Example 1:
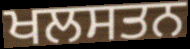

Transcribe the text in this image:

ਖਲਸਤਨ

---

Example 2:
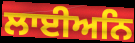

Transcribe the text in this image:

ਲਾਈਅਨਿ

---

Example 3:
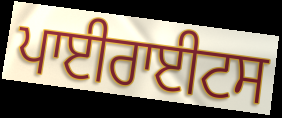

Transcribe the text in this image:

ਪਾਈਰਾਈਟਸ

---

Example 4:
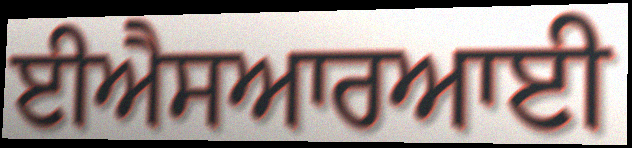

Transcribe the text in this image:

ਈਐਸਆਰਆਈ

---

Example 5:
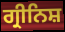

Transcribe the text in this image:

ਗ੍ਰੀਨਿਸ਼